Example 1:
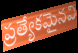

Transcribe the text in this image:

ప్రత్యేకమైనవి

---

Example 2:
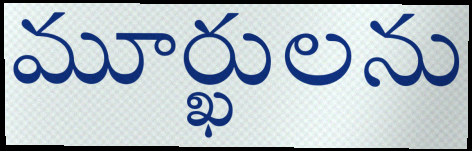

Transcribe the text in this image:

మూర్ఖులను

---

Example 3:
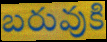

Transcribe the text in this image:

బరువుకి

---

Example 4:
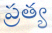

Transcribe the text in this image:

ప్రత్య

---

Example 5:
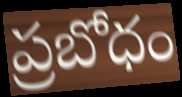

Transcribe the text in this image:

ప్రబోధం